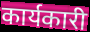
कार्यकारी